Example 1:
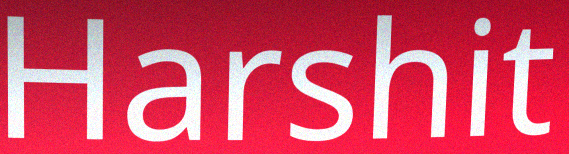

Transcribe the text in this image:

Harshit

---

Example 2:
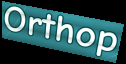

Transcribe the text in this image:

Orthop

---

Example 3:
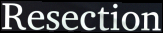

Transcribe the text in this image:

Resection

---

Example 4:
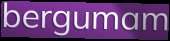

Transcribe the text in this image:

bergumam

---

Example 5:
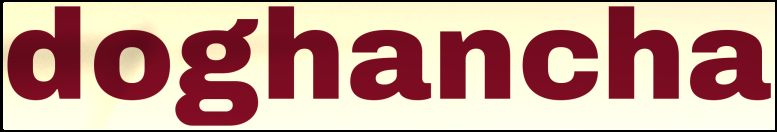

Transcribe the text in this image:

doghancha